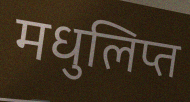
मधुलिप्त